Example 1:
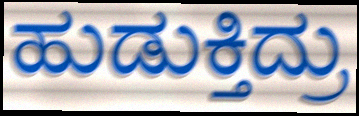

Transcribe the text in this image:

ಹುಡುಕ್ತಿದ್ರು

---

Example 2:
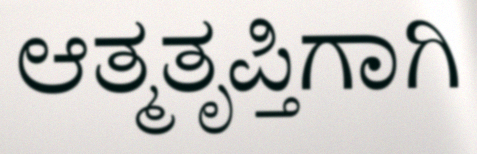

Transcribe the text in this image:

ಆತ್ಮತೃಪ್ತಿಗಾಗಿ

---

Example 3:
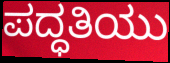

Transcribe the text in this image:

ಪದ್ಧತಿಯು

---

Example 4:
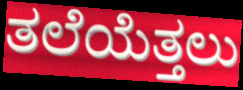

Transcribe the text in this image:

ತಲೆಯೆತ್ತಲು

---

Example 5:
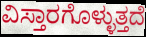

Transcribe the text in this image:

ವಿಸ್ತಾರಗೊಳ್ಳುತ್ತದೆ